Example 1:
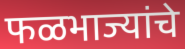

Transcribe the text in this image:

फळभाज्यांचे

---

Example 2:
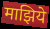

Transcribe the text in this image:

माझिये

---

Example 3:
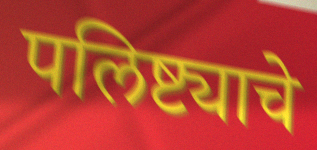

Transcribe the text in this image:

पलिष्ट्याचे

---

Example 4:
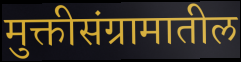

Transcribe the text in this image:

मुक्तीसंग्रामातील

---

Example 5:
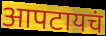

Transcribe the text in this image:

आपटायचं